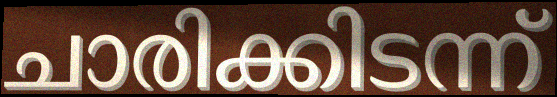
ചാരിക്കിടന്ന്